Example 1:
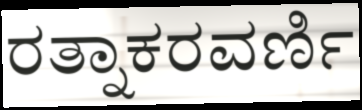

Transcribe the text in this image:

ರತ್ನಾಕರವರ್ಣಿ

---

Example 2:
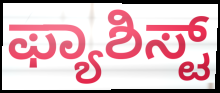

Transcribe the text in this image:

ಫ್ಯಾಶಿಸ್ಟ್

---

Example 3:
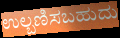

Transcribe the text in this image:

ಉಲ್ಬಣಿಸಬಹುದು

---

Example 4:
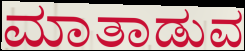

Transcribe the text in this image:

ಮಾತಾಡುವ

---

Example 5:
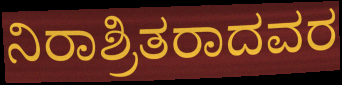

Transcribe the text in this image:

ನಿರಾಶ್ರಿತರಾದವರ